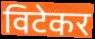
विटेकर